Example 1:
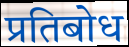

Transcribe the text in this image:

प्रतिबोध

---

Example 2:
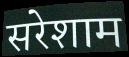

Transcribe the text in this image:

सरेशाम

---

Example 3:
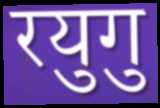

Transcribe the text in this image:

रयुगु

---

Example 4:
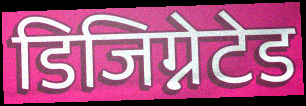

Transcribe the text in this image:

डिजिग्नेटेड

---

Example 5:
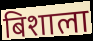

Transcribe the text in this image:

बिशाला